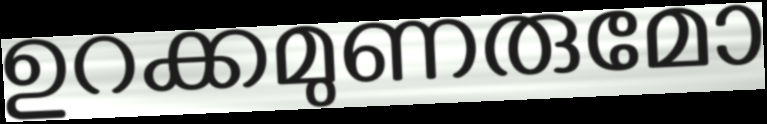
ഉറക്കമുണരുമോ